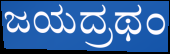
ಜಯದ್ರಥಂ